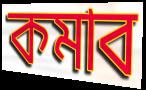
কমাব